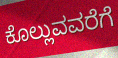
ಕೊಲ್ಲುವವರೆಗೆ